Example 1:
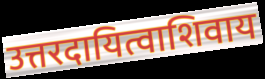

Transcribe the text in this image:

उत्तरदायित्वाशिवाय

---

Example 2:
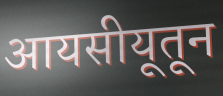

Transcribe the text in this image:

आयसीयूतून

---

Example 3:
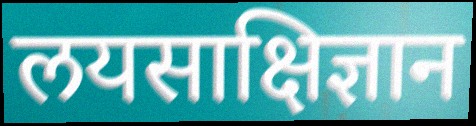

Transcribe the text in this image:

लयसाक्षिज्ञान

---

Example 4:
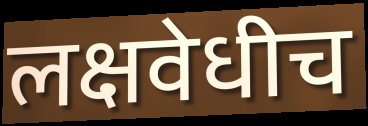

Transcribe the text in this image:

लक्षवेधीच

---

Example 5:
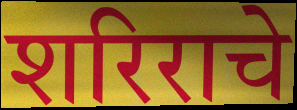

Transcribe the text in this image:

शरिराचे